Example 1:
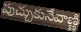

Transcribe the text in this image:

పుచ్చుకునేవాణ్ణి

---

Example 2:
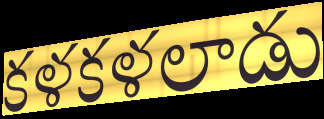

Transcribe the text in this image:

కళకళలాడు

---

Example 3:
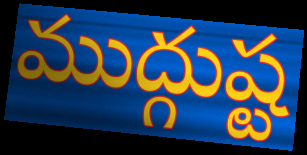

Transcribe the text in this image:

ముద్గుష్ట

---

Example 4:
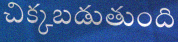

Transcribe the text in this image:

చిక్కబడుతుంది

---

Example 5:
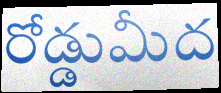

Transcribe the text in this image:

రోడ్డుమీద